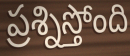
ప్రశ్నిస్తోంది